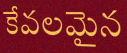
కేవలమైన